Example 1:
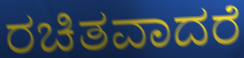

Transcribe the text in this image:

ರಚಿತವಾದರೆ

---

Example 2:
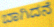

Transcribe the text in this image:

ಬಾಗಿದನೆ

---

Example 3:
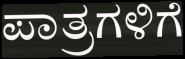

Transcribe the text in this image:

ಪಾತ್ರಗಳಿಗೆ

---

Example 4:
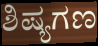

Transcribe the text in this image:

ಶಿಷ್ಯಗಣ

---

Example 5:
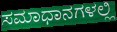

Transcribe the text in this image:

ಸಮಾಧಾನಗಳಲ್ಲಿ